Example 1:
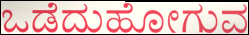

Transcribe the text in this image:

ಒಡೆದುಹೋಗುವ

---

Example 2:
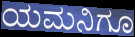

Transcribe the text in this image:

ಯಮನಿಗೂ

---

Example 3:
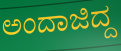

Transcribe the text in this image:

ಅಂದಾಜಿದ್ದ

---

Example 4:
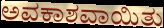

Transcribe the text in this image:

ಅವಕಾಶವಾಯಿತು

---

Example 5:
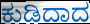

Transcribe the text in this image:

ಕುಡಿದಾದ